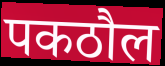
पकठौल